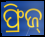
ଫ୍ରିଜ୍